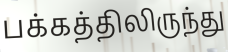
பக்கத்திலிருந்து